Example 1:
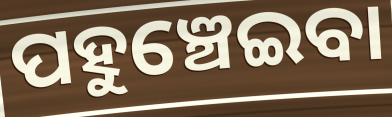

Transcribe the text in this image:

ପହୁଞ୍ଚେଇବା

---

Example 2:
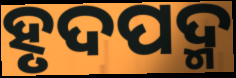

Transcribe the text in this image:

ହୃଦପଦ୍ମ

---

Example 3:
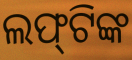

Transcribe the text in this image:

ଲଫ୍‌ଟିଙ୍କ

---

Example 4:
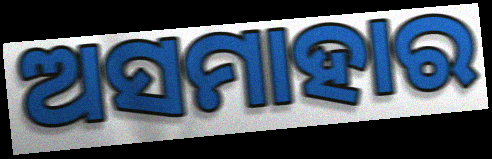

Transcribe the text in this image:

ଅସମାହାର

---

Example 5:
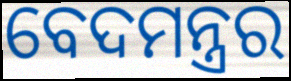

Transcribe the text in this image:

ବେଦମନ୍ତ୍ରର